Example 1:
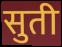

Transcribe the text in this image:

सुती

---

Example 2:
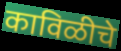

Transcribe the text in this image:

काविळीचे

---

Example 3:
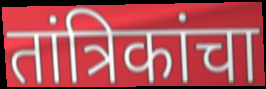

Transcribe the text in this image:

तांत्रिकांचा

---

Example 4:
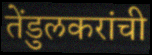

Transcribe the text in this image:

तेंडुलकरांची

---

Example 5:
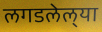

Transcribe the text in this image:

लगडलेल्या